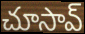
చూసావ్